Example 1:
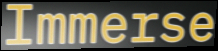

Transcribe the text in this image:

Immerse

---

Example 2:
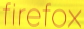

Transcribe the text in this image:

firefox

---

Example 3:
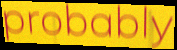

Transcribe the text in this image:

probably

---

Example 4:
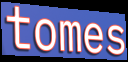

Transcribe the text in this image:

tomes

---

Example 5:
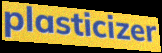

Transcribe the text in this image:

plasticizer